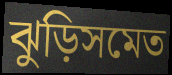
ঝুড়িসমেত